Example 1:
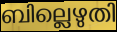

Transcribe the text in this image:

ബില്ലെഴുതി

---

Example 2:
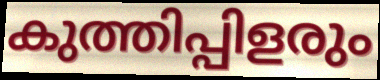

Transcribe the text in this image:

കുത്തിപ്പിളരും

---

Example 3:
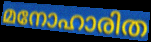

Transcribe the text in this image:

മനോഹാരിത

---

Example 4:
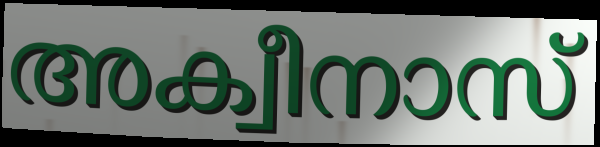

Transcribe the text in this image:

അക്വീനാസ്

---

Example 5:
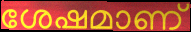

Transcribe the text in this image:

ശേഷമാണ്